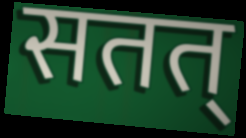
सतत्